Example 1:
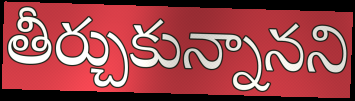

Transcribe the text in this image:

తీర్చుకున్నానని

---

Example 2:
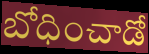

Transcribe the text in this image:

బోధించాడో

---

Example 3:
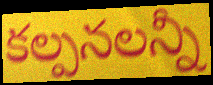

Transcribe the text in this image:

కల్పనలన్నీ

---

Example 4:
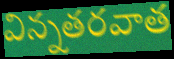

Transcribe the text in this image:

విన్నతరవాత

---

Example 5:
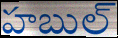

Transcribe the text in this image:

హబుల్